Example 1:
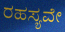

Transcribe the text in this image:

ರಹಸ್ಯವೇ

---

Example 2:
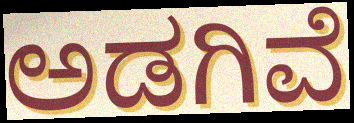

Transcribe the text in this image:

ಅಡಗಿವೆ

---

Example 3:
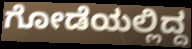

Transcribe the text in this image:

ಗೋಡೆಯಲ್ಲಿದ್ದ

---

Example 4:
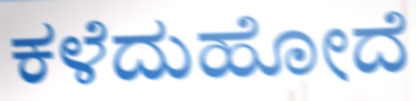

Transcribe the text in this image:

ಕಳೆದುಹೋದೆ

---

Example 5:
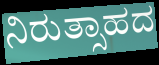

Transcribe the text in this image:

ನಿರುತ್ಸಾಹದ